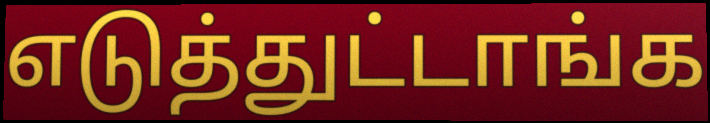
எடுத்துட்டாங்க